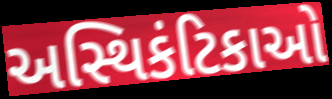
અસ્થિકંટિકાઓ